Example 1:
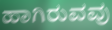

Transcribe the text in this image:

ಹಾಗಿರುವವು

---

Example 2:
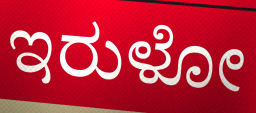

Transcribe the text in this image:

ಇರುಳೋ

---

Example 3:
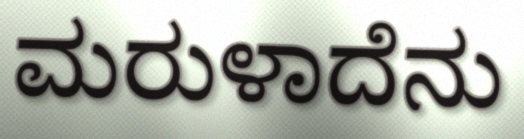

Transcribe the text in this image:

ಮರುಳಾದೆನು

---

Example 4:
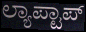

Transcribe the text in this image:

ಲ್ಯಾಪ್ಟಾಪ್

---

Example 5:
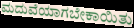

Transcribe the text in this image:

ಮದುವೆಯಾಗಬೇಕಾಯಿತು